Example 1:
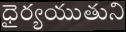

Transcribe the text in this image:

ధైర్యయుతుని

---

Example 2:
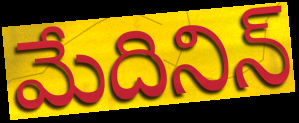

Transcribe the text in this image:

మేదినిన్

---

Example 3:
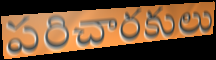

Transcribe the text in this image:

పరిచారకులు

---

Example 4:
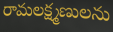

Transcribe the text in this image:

రామలక్ష్మణులను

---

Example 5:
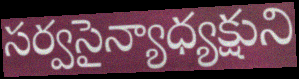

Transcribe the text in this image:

సర్వసైన్యాధ్యక్షుని